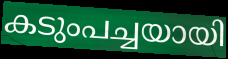
കടുംപച്ചയായി